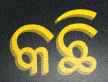
କଛି